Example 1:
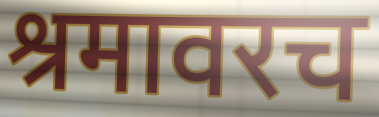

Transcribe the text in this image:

श्रमावरच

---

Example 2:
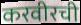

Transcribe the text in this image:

करवीरची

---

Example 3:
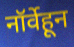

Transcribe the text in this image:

नॉर्वेहून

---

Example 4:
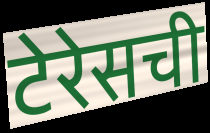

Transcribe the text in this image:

टेरेसची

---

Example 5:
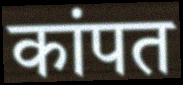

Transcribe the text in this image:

कांपत